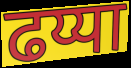
ढय्या